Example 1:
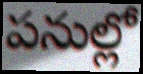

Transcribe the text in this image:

పనుల్లో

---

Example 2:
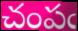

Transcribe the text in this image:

చంపఁ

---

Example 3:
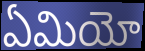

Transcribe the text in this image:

ఏమియో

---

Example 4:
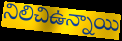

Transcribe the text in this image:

నిలిచిఉన్నాయి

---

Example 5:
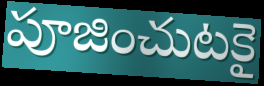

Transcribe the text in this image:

పూజించుటకై